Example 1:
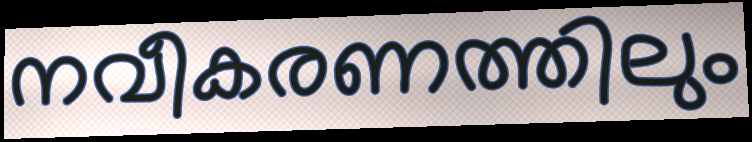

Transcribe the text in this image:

നവീകരണത്തിലും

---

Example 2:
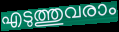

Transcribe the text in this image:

എടുത്തുവരാം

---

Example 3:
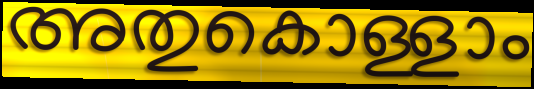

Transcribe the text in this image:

അതുകൊള്ളാം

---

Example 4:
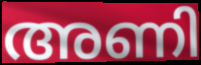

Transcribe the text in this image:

അണി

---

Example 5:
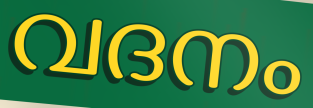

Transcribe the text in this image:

വദനം